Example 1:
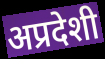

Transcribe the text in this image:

अप्रदेशी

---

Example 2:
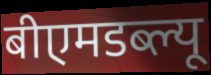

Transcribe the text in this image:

बीएमडब्ल्यू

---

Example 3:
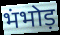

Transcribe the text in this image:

भंभोड़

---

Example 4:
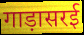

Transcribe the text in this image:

गाड़ासरई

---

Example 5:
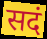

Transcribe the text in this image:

सदं